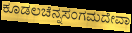
ಕೂಡಲಚೆನ್ನಸಂಗಮದೇವಾ